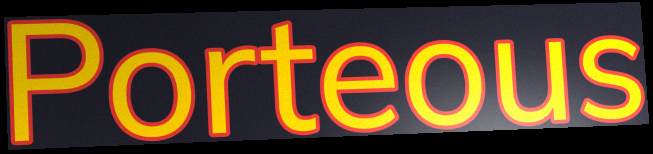
Porteous